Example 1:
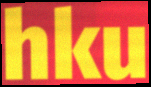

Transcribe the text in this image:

hku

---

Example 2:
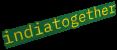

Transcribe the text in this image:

indiatogether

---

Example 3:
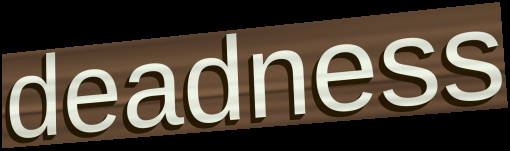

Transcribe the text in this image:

deadness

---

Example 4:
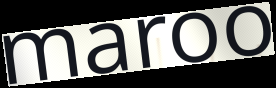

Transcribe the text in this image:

maroo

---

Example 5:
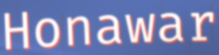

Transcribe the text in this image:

Honawar